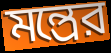
মন্ত্রের